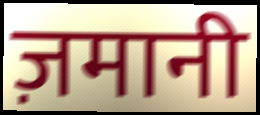
ज़मानी